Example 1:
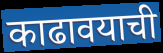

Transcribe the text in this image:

काढावयाची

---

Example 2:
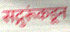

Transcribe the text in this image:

सद्गुरूंकडून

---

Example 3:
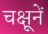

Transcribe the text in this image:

चक्षूनें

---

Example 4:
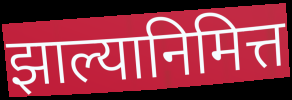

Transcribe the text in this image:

झाल्यानिमित्त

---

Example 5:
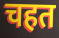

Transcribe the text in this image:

चहत